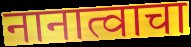
नानात्वाचा